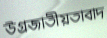
উগ্রজাতীয়তাবাদ